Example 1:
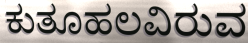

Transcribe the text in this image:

ಕುತೂಹಲವಿರುವ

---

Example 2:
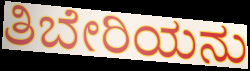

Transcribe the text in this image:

ತಿಬೇರಿಯನು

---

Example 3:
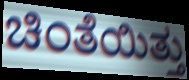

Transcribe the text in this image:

ಚಿಂತೆಯಿತ್ತು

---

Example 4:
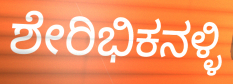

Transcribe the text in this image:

ಶೇರಿಭಿಕನಳ್ಳಿ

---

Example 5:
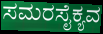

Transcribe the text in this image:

ಸಮರಸೈಕ್ಯವ